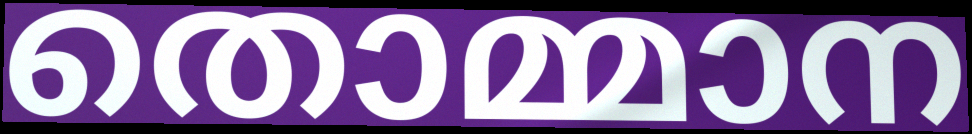
തൊമ്മാന